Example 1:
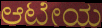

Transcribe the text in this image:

ಆಟೇಯ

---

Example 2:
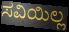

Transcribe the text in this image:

ಸವಿಯಿಲ್ಲ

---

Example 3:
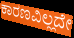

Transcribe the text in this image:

ಕಾರಣವಿಲ್ಲದೇ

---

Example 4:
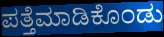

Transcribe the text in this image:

ಪತ್ತೆಮಾಡಿಕೊಂಡು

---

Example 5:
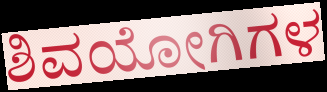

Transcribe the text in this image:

ಶಿವಯೋಗಿಗಳ